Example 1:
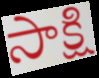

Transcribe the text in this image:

సాక్షి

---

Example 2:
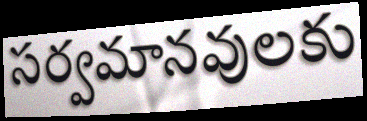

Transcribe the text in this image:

సర్వమానవులకు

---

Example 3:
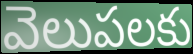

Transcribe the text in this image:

వెలుపలకు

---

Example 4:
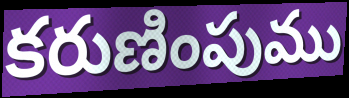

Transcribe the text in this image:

కరుణింపుము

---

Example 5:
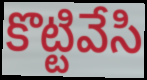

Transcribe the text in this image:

కొట్టివేసి